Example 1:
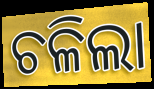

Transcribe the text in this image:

ଚଳିଲା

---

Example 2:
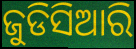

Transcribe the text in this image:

ଜୁଡିସିଆରି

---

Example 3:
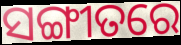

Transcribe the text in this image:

ସଙ୍ଗୀତରେ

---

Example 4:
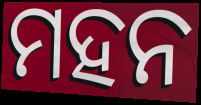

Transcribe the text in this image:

ମହନ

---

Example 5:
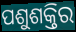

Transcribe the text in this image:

ପଶୁଶକ୍ତିର